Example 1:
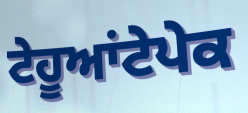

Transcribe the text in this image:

ਟੇਹੂਆਂਟੇਪੇਕ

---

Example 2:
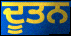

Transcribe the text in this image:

ਦੂਤਨ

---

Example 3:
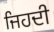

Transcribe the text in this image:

ਜਿਹਦੀ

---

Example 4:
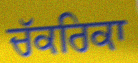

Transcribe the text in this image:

ਚੱਕਰਿਕਾ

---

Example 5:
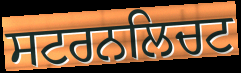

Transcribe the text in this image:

ਸਟਰਨਲਿਚਟ